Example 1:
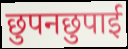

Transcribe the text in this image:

छुपनछुपाई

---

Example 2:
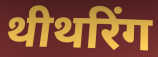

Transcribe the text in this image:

थीथरिंग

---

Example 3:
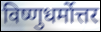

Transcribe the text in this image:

विष्णुधर्मोत्तर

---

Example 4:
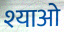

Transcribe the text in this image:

श्याओ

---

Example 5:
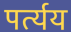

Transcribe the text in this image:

पर्त्यय